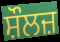
ਸ਼ੌਲਜ਼